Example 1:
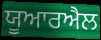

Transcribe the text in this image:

ਯੂਆਰਐਲ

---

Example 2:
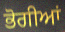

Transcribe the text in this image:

ਭੋਗੀਆਂ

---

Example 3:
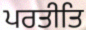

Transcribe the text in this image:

ਪਰਤੀਤਿ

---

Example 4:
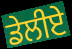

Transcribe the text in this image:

ਡੇਲੀਏ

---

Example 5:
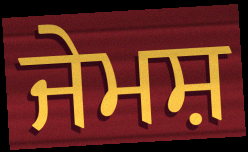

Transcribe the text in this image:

ਜੇਮਸ਼